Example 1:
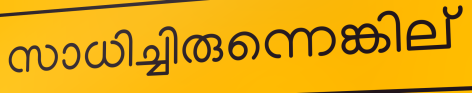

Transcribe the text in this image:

സാധിച്ചിരുന്നെങ്കില്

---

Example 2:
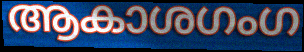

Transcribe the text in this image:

ആകാശഗംഗ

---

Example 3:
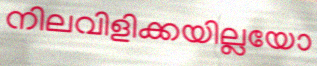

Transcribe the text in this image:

നിലവിളിക്കയില്ലയോ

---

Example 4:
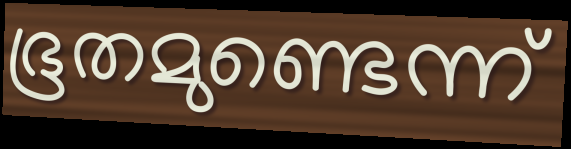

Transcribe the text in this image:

ഭൂതമുണ്ടെന്ന്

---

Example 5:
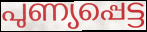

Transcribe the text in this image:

പുണ്യപ്പെട്ട